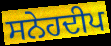
ਸਨੇਹਦੀਪ